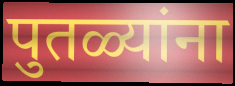
पुतळ्यांना